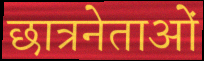
छात्रनेताओं